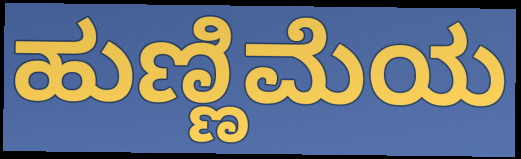
ಹುಣ್ಣಿಮೆಯ